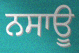
ਨਸਾਊ